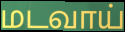
மடவாய்